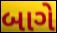
બાગે